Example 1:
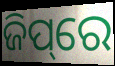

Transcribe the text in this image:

ଜିପ୍‌ରେ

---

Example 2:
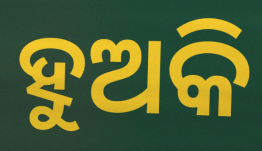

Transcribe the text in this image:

ହୁଅକି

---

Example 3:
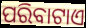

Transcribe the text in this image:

ପରିବାଟାଏ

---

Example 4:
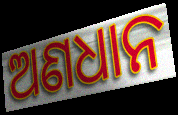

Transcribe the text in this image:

ଅଣଧାନ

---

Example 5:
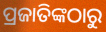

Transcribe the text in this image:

ପ୍ରଜାତିଙ୍କଠାରୁ